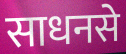
साधनसे